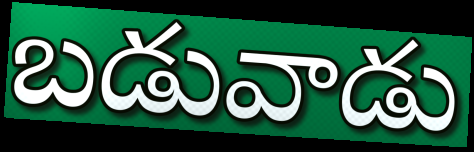
బడువాడు